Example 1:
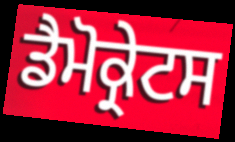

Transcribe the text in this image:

ਡੈਮੋਕ੍ਰੇਟਸ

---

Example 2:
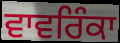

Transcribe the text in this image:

ਵਾਵਰਿੰਕਾ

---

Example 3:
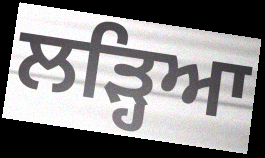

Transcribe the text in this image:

ਲੜ੍ਹਿਆ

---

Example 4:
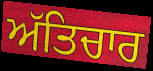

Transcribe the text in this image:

ਅੱਤਿਚਾਰ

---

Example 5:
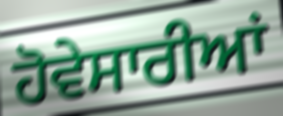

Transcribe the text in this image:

ਹੋਵੇਸਾਰੀਆਂ